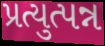
પ્રત્યુત્પન્ન